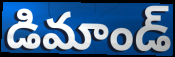
డిమాండ్